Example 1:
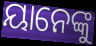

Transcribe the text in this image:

ୟାନେଙ୍କୁ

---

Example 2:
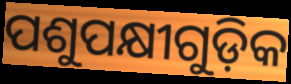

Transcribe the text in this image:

ପଶୁପକ୍ଷୀଗୁଡ଼ିକ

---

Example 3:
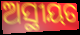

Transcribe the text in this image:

ଅସ୍ଥୀୟତ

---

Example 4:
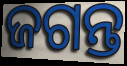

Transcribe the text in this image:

ଜଗନ୍ତ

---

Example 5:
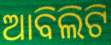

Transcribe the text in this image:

ଆବିଲିଟି